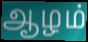
ஆழம்